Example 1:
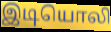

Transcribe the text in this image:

இடியொலி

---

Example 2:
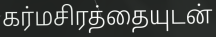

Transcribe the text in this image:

கர்மசிரத்தையுடன்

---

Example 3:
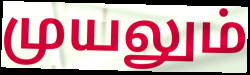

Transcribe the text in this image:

முயலும்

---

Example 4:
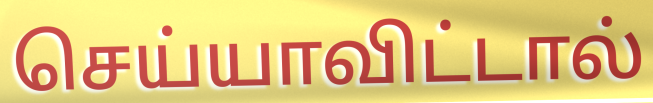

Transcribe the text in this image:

செய்யாவிட்டால்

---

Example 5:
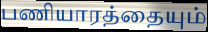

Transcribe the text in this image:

பணியாரத்தையும்